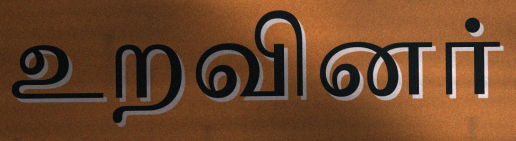
உறவினர்